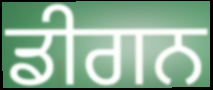
ਡੀਗਨ